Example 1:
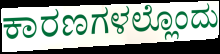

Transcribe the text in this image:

ಕಾರಣಗಳಲ್ಲೊಂದು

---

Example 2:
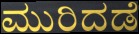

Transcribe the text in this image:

ಮುರಿದಡೆ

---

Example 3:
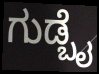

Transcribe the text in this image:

ಗುಡ್ಬೈ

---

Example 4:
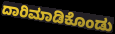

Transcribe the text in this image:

ದಾರಿಮಾಡಿಕೊಂಡು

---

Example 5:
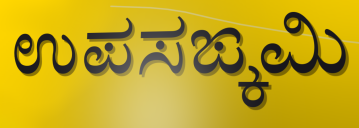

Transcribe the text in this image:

ಉಪಸಙ್ಕಮಿ